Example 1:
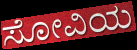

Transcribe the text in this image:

ಸೋವಿಯ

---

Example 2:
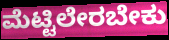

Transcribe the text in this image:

ಮೆಟ್ಟಿಲೇರಬೇಕು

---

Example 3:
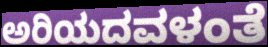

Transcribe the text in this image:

ಅರಿಯದವಳಂತೆ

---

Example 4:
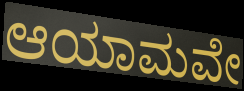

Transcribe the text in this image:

ಆಯಾಮವೇ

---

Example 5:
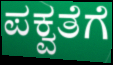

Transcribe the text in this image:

ಪಕ್ವತೆಗೆ